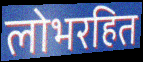
लोभरहित